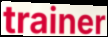
trainer